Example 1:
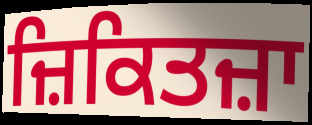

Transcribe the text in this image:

ਜ਼ਿਕਿਤਜ਼ਾ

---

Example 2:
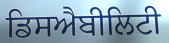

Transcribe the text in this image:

ਡਿਸਐਬੀਲਿਟੀ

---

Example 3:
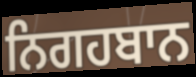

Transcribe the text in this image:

ਨਿਗਹਬਾਨ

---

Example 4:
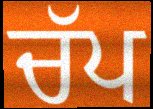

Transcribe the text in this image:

ਚੱਪ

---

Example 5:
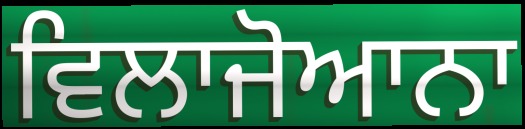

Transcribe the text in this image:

ਵਿਲਾਜੋਆਨਾ